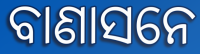
ବାଣାସନେ